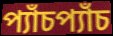
প্যাঁচপ্যাঁচ